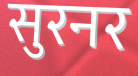
सुरनर